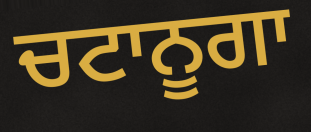
ਚਟਾਨੂਗਾ